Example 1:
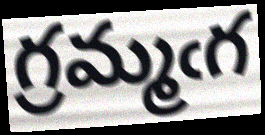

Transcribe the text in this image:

గ్రమ్మఁగ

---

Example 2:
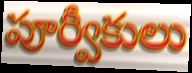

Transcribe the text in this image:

పూర్వీకులు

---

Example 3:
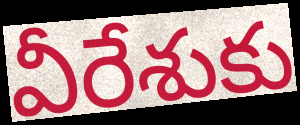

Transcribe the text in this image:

వీరేశుకు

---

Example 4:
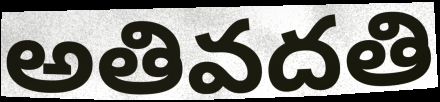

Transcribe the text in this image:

అతివదతి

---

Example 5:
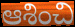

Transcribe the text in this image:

ఆశించి